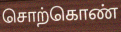
சொற்கொண்